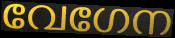
വേഗേന